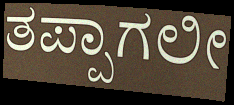
ತಪ್ಪಾಗಲೀ